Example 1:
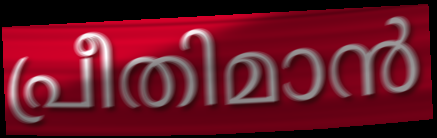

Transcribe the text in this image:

പ്രീതിമാൻ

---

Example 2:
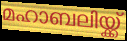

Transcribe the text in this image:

മഹാബലിയ്ക്ക്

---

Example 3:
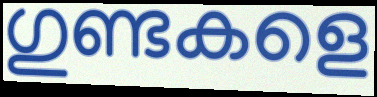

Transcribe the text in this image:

ഗുണ്ടകളെ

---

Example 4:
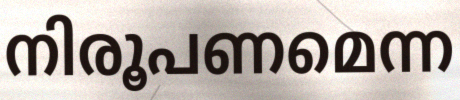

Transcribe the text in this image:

നിരൂപണമെന്ന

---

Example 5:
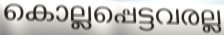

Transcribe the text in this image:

കൊല്ലപ്പെട്ടവരല്ല